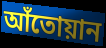
আঁতোয়ান